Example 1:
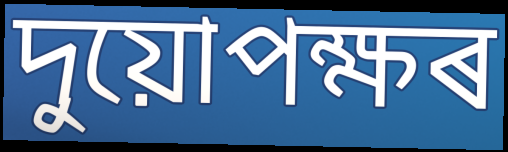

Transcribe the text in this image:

দুয়োপক্ষৰ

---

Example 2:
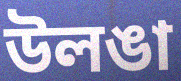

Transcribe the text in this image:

উলঙা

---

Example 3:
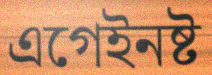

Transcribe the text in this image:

এগেইনষ্ট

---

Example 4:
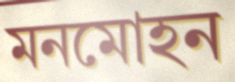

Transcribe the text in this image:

মনমোহন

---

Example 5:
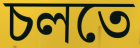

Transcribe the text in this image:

চলতে